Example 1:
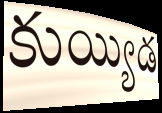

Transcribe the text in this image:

కుయ్యిడ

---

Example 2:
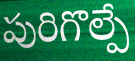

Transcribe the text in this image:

పురిగొల్పే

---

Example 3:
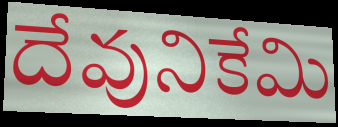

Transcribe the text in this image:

దేవునికేమి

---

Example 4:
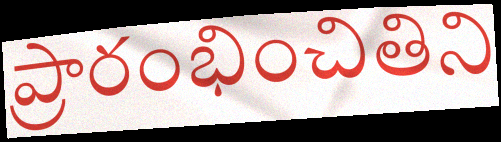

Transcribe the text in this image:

ప్రారంభించితిని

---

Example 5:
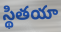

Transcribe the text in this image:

స్థితయా